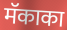
मॅकाका